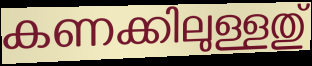
കണക്കിലുള്ളതു്